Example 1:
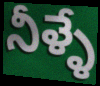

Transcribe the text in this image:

నీళ్ళే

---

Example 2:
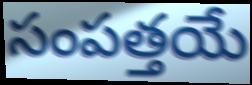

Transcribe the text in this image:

సంపత్తయే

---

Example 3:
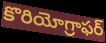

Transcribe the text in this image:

కొరియోగ్రాఫర్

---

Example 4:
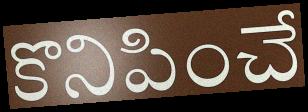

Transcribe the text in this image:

కొనిపించే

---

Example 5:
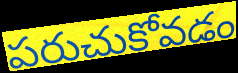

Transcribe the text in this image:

పరుచుకోవడం